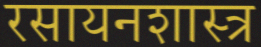
रसायनशास्त्र